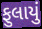
ફુલાયું